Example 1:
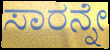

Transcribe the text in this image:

ಸಾರನ್ನೇ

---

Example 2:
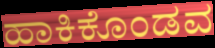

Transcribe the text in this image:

ಹಾಕಿಕೊಂಡವ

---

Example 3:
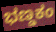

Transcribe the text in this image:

ಭಣ್ಡಕಂ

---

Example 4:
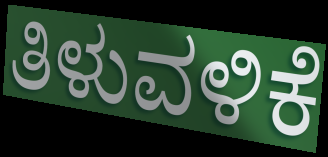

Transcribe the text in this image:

ತಿಳುವಳಿಕೆ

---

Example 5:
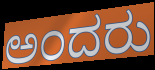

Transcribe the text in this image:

ಅಂದರು